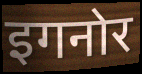
इगनोर